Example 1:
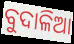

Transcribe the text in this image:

ବୁଦାଳିଆ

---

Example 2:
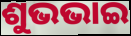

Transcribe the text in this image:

ଶୁଭଭାଇ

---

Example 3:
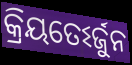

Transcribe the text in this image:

କ୍ରିୟତେଽର୍ଜୁନ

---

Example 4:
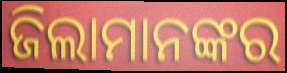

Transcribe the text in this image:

ଜିଲାମାନଙ୍କର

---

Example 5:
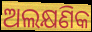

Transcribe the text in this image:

ଅଲକ୍ଷଣିକ